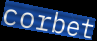
corbet